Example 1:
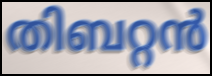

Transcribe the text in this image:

തിബറ്റൻ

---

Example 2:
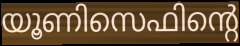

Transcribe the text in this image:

യൂണിസെഫിന്റെ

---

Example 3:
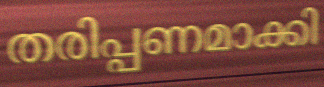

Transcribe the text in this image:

തരിപ്പണമാക്കി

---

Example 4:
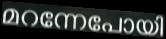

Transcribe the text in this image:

മറന്നേപോയി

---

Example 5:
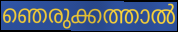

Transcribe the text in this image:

ഞെരുക്കത്താൽ